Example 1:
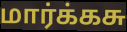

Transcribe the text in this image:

மார்க்கசு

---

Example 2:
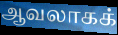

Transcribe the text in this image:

ஆவலாகக்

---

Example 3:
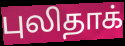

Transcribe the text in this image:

புலிதாக்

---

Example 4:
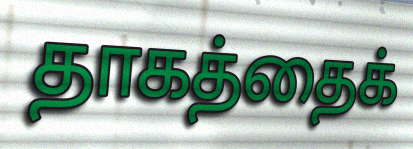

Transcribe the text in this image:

தாகத்தைக்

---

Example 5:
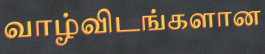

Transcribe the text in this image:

வாழ்விடங்களான